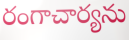
రంగాచార్యను